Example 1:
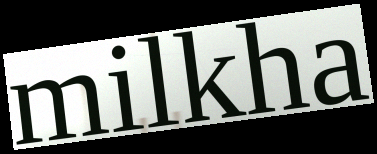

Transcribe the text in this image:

milkha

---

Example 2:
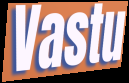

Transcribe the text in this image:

Vastu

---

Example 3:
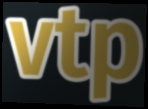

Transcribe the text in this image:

vtp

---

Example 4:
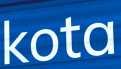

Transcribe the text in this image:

kota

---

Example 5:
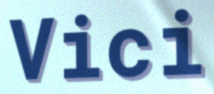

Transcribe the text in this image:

Vici